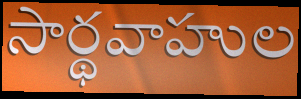
సార్థవాహుల